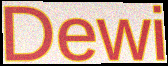
Dewi